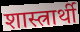
शास्त्रार्थी